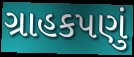
ગ્રાહકપણું